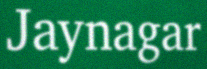
Jaynagar